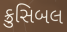
ક્રુસિબલ